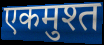
एकमुश्‍त